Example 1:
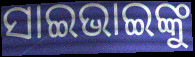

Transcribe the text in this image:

ସାଇଭାଇଙ୍କୁ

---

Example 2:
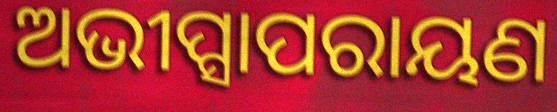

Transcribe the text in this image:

ଅଭୀପ୍ସାପରାୟଣ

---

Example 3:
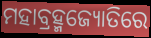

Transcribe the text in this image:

ମହାବ୍ରହ୍ମଜ୍ୟୋତିରେ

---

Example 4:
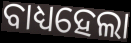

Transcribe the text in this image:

ବାଧ୍ୟହେଲା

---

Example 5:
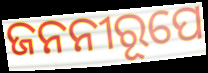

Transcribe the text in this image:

ଜନନୀରୂପେ